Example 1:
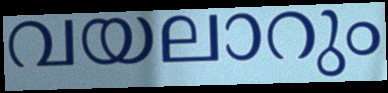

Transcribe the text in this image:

വയലാറും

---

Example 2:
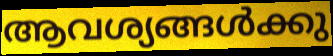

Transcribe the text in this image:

ആവശ്യങ്ങൾക്കു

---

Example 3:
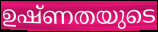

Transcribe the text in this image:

ഉഷ്ണതയുടെ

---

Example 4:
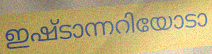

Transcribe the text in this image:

ഇഷ്ടാന്നറിയോടാ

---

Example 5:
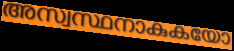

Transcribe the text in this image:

അസ്വസ്ഥനാകുകയോ